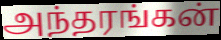
அந்தரங்கன்